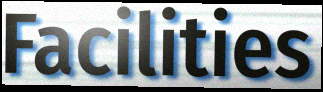
Facilities